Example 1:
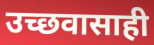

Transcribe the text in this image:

उच्छवासाही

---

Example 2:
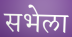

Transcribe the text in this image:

सभेला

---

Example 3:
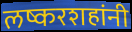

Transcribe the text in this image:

लष्करशहांनी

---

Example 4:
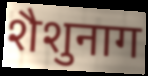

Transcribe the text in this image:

शैशुनाग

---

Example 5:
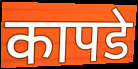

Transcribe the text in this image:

कापडे